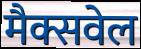
मैक्सवेल